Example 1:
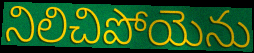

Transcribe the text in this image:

నిలిచిపోయెను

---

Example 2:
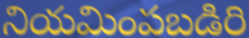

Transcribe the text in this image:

నియమింపబడిరి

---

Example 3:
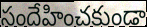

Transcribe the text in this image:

సందేహించకుండా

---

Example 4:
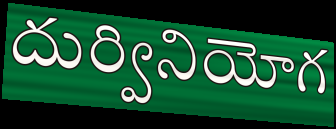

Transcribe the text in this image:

దుర్వినియోగ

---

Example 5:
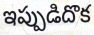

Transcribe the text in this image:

ఇప్పుడిదొక